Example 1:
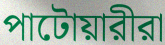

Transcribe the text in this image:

পাটোয়ারীরা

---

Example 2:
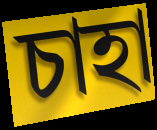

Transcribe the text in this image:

চাহা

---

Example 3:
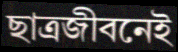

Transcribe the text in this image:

ছাত্রজীবনেই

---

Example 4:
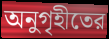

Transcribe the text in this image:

অনুগৃহীতের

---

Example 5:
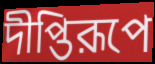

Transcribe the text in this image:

দীপ্তিরূপে